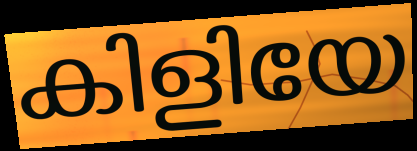
കിളിയേ